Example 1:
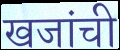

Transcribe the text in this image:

खजांची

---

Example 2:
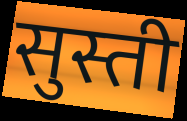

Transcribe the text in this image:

सुस्‍ती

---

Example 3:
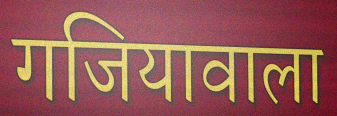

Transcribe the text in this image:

गजियावाला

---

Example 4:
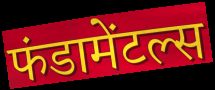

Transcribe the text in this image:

फंडामेंटल्स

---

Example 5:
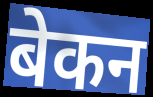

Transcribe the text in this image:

बेकन